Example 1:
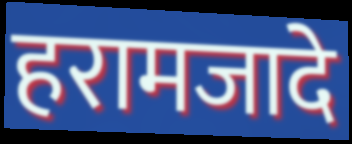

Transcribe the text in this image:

हरामजादे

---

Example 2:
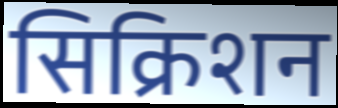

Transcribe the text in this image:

सिक्रिशन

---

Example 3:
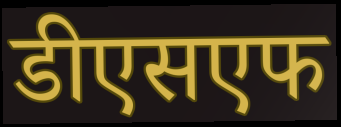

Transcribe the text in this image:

डीएसएफ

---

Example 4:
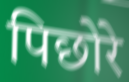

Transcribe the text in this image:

पिछोरे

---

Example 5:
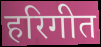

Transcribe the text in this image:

हरिगीत